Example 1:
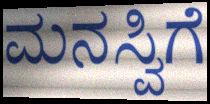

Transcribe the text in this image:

ಮನಸ್ವಿಗೆ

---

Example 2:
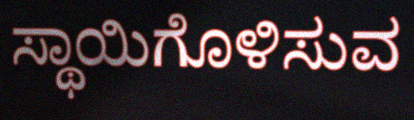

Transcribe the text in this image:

ಸ್ಥಾಯಿಗೊಳಿಸುವ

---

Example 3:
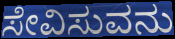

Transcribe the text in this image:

ಸೇವಿಸುವನು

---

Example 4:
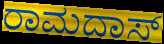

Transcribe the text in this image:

ರಾಮದಾಸ್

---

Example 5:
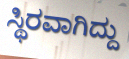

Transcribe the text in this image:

ಸ್ಥಿರವಾಗಿದ್ದು